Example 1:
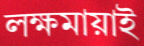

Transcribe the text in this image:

লক্ষমায়াই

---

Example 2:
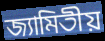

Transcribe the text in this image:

জ্যামিতীয়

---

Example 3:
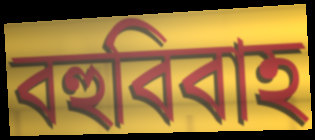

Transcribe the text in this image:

বহুবিবাহ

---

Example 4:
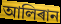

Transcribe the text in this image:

আলিৰান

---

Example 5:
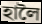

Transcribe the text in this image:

হালৈ